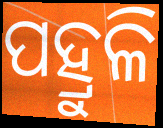
ପହ୍ରୁଳି